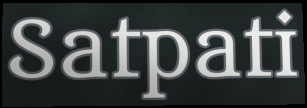
Satpati